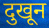
दुखून